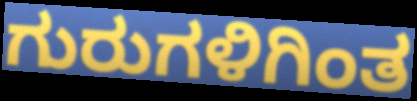
ಗುರುಗಳಿಗಿಂತ